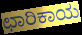
ಛಾರಿಕಾಯ